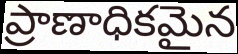
ప్రాణాధికమైన